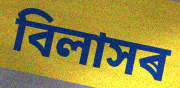
বিলাসৰ